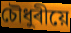
চৌধুৰীয়ে